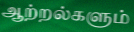
ஆற்றல்களும்